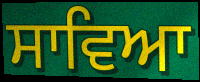
ਸਾਵਿਆ